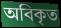
অবিকৃত